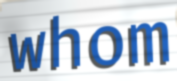
whom